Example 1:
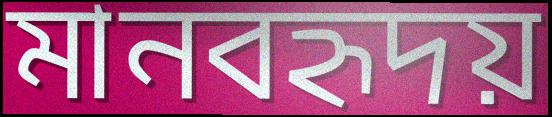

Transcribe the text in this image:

মানবহৃদয়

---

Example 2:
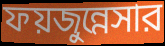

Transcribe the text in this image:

ফয়জুন্নেসার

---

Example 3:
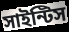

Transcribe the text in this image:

সাইন্টিস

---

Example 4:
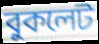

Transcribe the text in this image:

বুকলেট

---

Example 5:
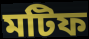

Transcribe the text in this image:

মটিফ